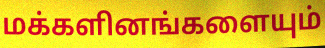
மக்களினங்களையும்